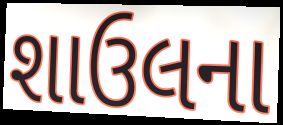
શાઉલના